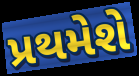
પ્રથમેશે